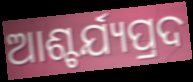
ଆଶ୍ଚର୍ଯ୍ୟପ୍ରଦ